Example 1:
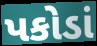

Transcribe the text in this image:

પકોડાં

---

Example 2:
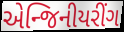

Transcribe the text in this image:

એન્જિનીયરીંગ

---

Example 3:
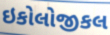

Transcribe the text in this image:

ઇકોલોજીકલ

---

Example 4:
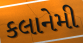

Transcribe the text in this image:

કલાનેમી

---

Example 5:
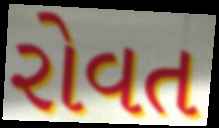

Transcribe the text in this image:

રોવત